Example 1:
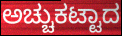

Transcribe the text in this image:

ಅಚ್ಚುಕಟ್ಟಾದ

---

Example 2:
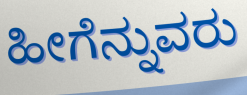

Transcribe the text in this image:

ಹೀಗೆನ್ನುವರು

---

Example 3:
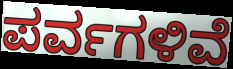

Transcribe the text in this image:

ಪರ್ವಗಳಿವೆ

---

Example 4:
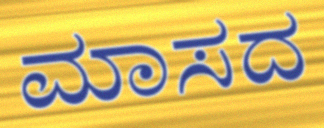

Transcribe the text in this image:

ಮಾಸದ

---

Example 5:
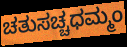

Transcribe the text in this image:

ಚತುಸಚ್ಚಧಮ್ಮಂ